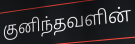
குனிந்தவளின்